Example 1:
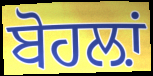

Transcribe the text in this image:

ਬੋਹਲ਼ਾਂ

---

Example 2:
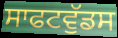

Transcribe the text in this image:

ਸਾਫਟਵੁੱਡਸ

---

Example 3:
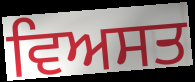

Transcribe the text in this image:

ਵਿਅਸਤ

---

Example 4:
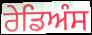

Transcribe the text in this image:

ਰੇਡਿਅੰਸ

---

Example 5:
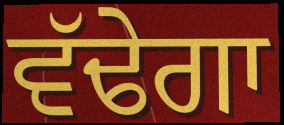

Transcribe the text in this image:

ਵੱਢੇਗਾ